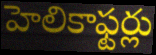
హెలికాఫ్టర్లు